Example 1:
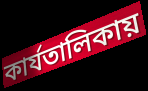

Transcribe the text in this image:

কার্যতালিকায়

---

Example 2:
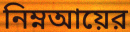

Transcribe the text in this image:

নিম্নআয়ের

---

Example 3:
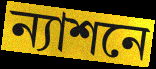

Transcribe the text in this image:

ন্যাশনে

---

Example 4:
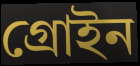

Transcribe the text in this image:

গ্রোইন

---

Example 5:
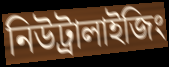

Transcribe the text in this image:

নিউট্রালাইজিং